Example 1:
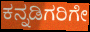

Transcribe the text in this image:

ಕನ್ನಡಿಗರಿಗೇ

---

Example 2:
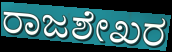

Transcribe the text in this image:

ರಾಜಶೇಖರ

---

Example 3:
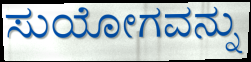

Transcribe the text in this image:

ಸುಯೋಗವನ್ನು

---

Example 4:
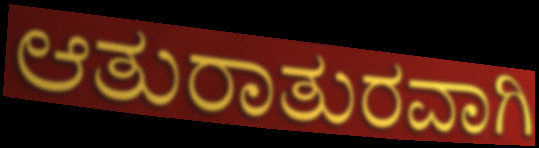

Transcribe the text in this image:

ಆತುರಾತುರವಾಗಿ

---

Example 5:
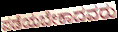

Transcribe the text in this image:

ಪಡೆಯಬೇಕಾದವರು